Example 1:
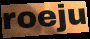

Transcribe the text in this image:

roeju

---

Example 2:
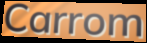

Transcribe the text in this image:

Carrom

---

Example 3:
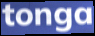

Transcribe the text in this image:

tonga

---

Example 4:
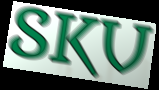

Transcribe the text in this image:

SKU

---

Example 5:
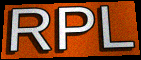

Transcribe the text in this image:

RPL